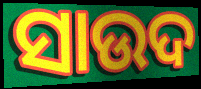
ସାଉଦ